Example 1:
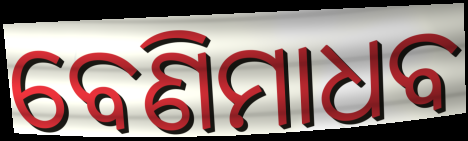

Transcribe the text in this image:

ବେଣିମାଧବ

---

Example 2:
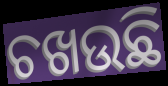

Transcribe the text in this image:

ଚଖଉଛି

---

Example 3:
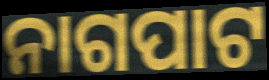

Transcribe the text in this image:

ନାଗପାଟ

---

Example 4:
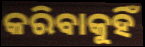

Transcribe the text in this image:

କରିବାକୁହିଁ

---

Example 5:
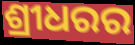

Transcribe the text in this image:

ଶ୍ରୀଧରର